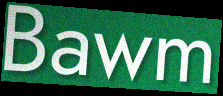
Bawm